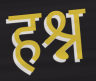
हश्न